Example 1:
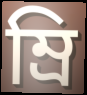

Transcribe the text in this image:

ম্রি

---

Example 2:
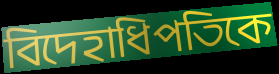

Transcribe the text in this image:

বিদেহাধিপতিকে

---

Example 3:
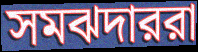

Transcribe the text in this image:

সমঝদাররা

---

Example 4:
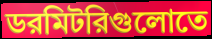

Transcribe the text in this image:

ডরমিটরিগুলোতে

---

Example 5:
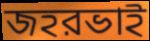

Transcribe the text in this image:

জহরভাই